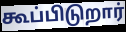
கூப்பிடுறார்